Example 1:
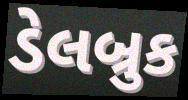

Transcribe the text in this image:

ડેલબ્રુક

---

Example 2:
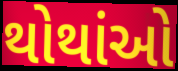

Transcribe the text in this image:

થોથાંઓ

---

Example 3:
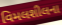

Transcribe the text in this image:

વિમલશીલના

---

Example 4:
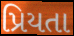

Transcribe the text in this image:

પ્રિયતા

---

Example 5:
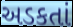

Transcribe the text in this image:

અડકતાં